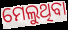
ମେଲୁଥିବା